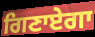
ਗਿਣਾਏਗਾ